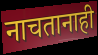
नाचतानाही